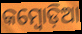
କମ୍ୱୋଡ଼ିଆ